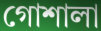
গোশালা